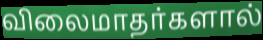
விலைமாதர்களால்